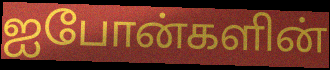
ஐபோன்களின்